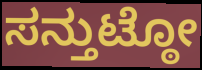
ಸನ್ತುಟ್ಠೋ